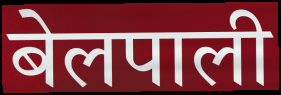
बेलपाली